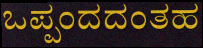
ಒಪ್ಪಂದದಂತಹ